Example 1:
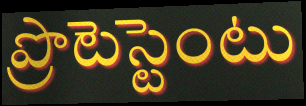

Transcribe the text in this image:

ప్రొటెస్టెంటు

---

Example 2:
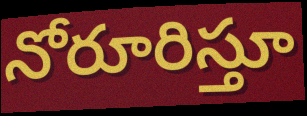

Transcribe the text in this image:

నోరూరిస్తూ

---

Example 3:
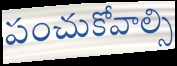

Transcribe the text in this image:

పంచుకోవాల్సి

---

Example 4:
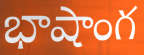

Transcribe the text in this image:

భాషాంగ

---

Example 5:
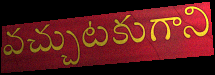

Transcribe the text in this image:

వచ్చుటకుగాని